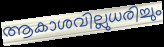
ആകാശവില്ലുധരിച്ചും